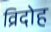
व्रिदोह